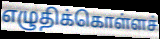
எழுதிக்கொள்ளச்